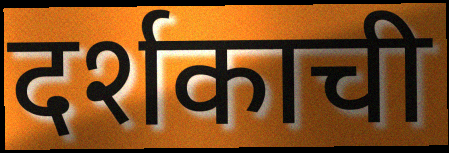
दर्शकाची